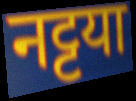
नट्टया